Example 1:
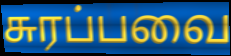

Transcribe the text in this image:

சுரப்பவை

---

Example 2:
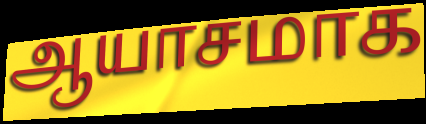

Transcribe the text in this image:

ஆயாசமாக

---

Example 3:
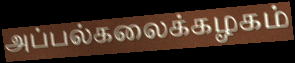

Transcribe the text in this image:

அப்பல்கலைக்கழகம்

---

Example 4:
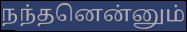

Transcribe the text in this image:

நந்தனென்னும்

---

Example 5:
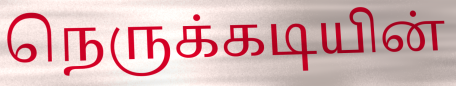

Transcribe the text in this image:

நெருக்கடியின்